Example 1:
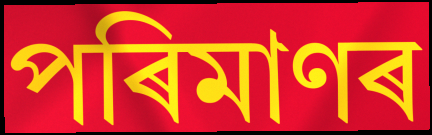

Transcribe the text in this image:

পৰিমাণৰ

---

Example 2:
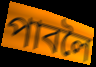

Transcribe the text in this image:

পাবলৈ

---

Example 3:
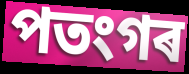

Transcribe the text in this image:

পতংগৰ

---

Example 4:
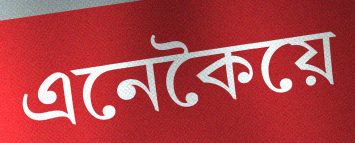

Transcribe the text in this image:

এনেকৈয়ে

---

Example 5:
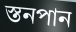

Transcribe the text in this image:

স্তনপান